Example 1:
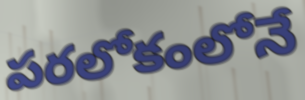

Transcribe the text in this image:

పరలోకంలోనే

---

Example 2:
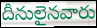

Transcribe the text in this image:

దీనులైనవారు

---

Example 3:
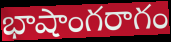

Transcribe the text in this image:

భాషాంగరాగం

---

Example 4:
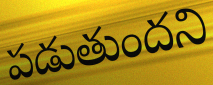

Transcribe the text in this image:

పడుతుందని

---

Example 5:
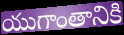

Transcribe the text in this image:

యుగాంతానికి